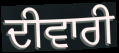
ਦੀਵਾਰੀ